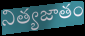
నిత్యజాతం